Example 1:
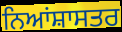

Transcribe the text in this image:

ਨਿਆਂਸ਼ਾਸਤਰ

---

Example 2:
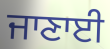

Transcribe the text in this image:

ਜਾਣਾਈ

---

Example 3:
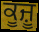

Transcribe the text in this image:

ਕੂਜ਼ੂ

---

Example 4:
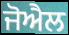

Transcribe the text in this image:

ਜੋਐਲ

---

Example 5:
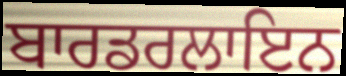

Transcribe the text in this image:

ਬਾਰਡਰਲਾਇਨ